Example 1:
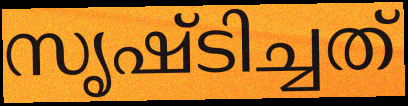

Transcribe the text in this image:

സൃഷ്ടിച്ചത്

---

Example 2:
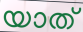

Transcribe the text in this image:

യാത്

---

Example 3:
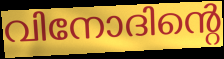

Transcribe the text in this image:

വിനോദിന്റെ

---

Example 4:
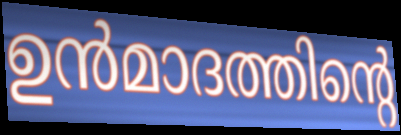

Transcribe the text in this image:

ഉൻമാദത്തിന്റെ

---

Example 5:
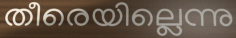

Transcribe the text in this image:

തീരെയില്ലെന്നു